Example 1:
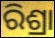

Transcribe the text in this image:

ରିଶ୍ରା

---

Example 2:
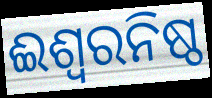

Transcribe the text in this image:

ଈଶ୍ୱରନିଷ୍ଠ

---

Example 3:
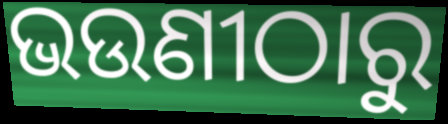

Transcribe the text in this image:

ଭଉଣୀଠାରୁ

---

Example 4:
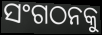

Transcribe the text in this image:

ସଂଗଠନକୁ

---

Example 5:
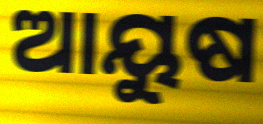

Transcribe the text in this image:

ଆୟୁଷ